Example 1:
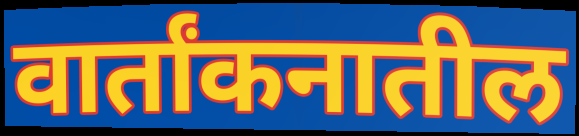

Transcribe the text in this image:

वार्तांकनातील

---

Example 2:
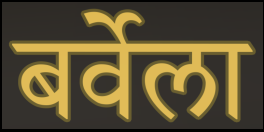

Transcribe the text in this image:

बर्वेला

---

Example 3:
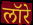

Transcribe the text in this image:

लॉरे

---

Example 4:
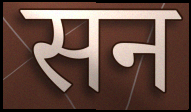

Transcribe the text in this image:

सन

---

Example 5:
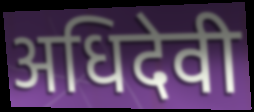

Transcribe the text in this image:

अधिदेवी